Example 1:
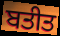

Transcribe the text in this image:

ਬਤੀਤ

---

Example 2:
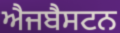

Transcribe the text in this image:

ਐਜਬੈਸਟਨ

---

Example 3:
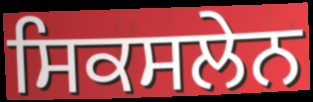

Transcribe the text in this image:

ਸਿਕਸਲੇਨ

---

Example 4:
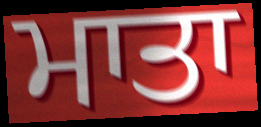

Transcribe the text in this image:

ਮਾਤਾ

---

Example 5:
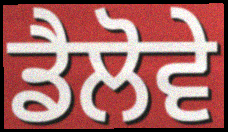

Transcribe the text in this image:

ਡੈਲੋਵੇ